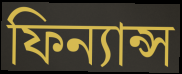
ফিন্যান্স